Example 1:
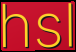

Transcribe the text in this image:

hsl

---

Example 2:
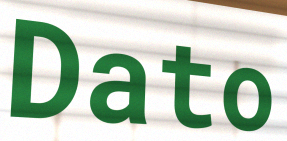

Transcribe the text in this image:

Dato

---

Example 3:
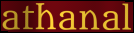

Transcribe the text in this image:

athanal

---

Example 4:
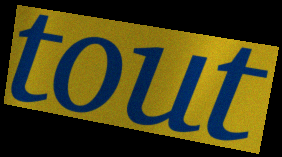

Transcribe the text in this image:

tout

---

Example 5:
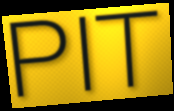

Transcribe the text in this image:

PIT